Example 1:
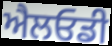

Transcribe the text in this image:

ਐਲਓਡੀ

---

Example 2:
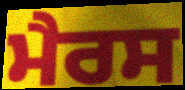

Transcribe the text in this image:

ਮੈਰਸ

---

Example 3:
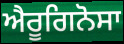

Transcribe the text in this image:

ਐਰੂਗਿਨੋਸਾ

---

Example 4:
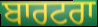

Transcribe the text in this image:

ਬਾਰਟਰਾ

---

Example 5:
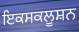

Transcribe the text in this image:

ਇਕਸਕਲੂਸ਼ਨ